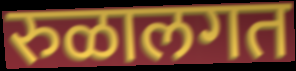
रुळालगत